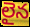
లైన